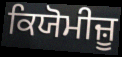
ਕਿਯੋਮੀਜ਼ੂ